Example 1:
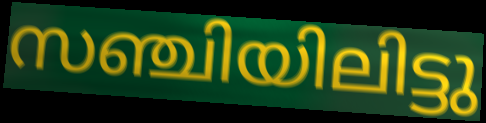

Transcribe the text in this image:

സഞ്ചിയിലിട്ടു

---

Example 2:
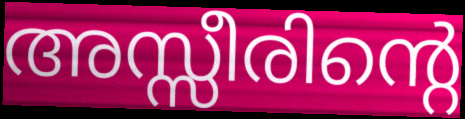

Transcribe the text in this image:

അസ്സീരിന്റെ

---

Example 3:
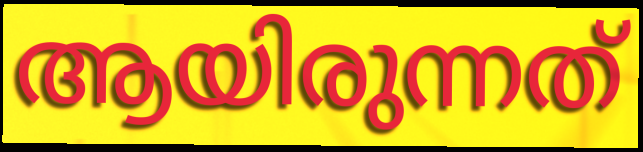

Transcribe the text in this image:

ആയിരുന്നത്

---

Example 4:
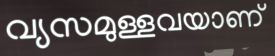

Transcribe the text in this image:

വ്യസമുള്ളവയാണ്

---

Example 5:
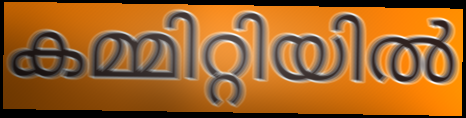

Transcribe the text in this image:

കമ്മിറ്റിയിൽ